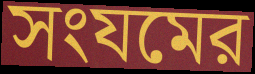
সংযমের